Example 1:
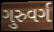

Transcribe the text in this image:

ગુરુવર્ગ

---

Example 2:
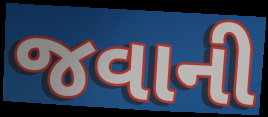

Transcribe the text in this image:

જવાની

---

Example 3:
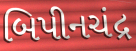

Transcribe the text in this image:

બિપીનચંદ્ર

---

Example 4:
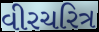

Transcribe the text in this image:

વીરચરિત્ર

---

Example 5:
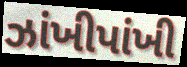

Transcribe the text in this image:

ઝાંખીપાંખી